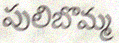
పులిబొమ్మ